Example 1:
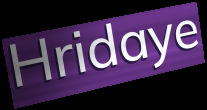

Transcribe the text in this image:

Hridaye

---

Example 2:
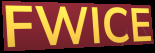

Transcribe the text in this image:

FWICE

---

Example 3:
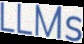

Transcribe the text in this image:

LLMs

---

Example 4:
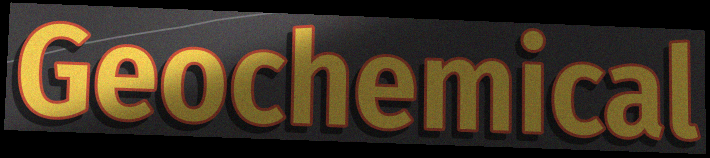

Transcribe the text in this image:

Geochemical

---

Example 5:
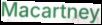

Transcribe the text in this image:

Macartney